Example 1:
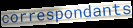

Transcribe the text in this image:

correspondants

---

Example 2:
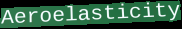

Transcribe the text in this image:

Aeroelasticity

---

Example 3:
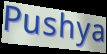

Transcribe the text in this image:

Pushya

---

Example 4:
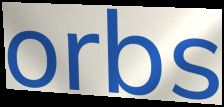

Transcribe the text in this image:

orbs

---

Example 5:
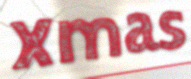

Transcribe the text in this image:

xmas